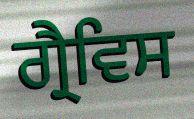
ਗ੍ਰੈਵਿਸ